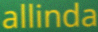
allinda